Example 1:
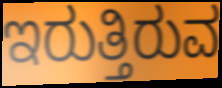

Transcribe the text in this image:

ಇರುತ್ತಿರುವ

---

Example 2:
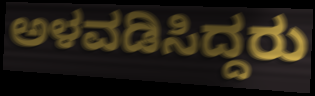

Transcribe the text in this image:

ಅಳವಡಿಸಿದ್ದರು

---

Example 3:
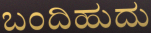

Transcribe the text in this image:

ಬಂದಿಹುದು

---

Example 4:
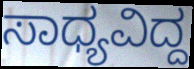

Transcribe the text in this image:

ಸಾಧ್ಯವಿದ್ದ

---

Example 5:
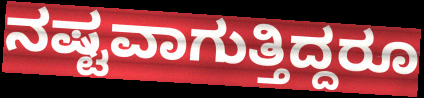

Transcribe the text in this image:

ನಷ್ಟವಾಗುತ್ತಿದ್ದರೂ